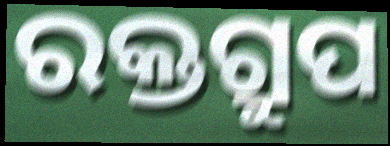
ରକ୍ତଗ୍ରୁପ